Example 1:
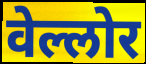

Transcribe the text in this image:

वेल्लोर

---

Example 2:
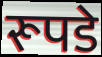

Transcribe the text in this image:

रूपडे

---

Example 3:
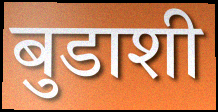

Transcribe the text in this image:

बुडाशी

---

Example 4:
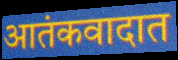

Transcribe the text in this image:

आतंकवादात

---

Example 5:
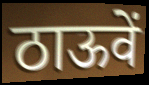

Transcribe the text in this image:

ठाऊवें